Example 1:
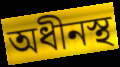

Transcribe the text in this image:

অধীনস্থ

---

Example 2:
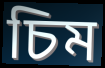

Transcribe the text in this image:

চিম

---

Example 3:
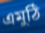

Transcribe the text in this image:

এমুঠি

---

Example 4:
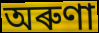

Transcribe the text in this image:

অৰুণা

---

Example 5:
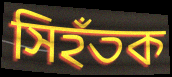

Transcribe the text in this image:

সিহঁতক